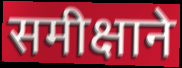
समीक्षाने